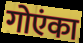
गोएंका